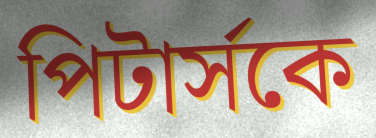
পিটার্সকে